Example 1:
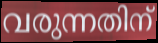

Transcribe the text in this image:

വരുന്നതിന്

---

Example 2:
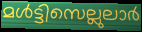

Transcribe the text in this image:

മൾട്ടിസെല്ലുലാർ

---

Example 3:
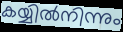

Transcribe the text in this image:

കയ്യിൽനിന്നും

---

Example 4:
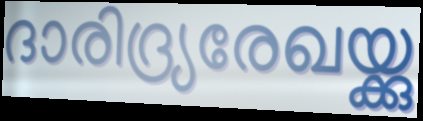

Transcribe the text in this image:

ദാരിദ്ര്യരേഖയ്ക്കു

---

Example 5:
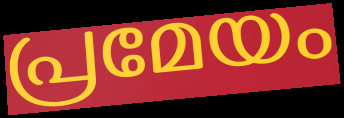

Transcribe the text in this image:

പ്രമേയം